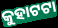
କୁହାଟଟା